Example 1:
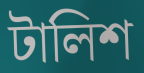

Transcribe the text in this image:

টালিশ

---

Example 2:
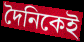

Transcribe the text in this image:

দৈনিকেই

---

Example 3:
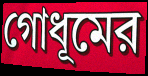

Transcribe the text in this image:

গোধূমের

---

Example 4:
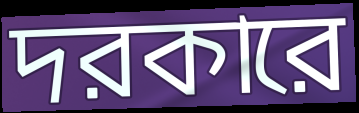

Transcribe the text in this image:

দরকারে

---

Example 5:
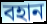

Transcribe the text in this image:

বহান